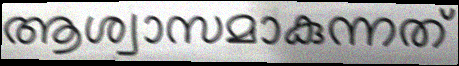
ആശ്വാസമാകുന്നത്